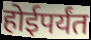
होईपर्यंत